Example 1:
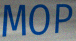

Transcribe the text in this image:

MOP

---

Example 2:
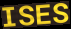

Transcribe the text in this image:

ISES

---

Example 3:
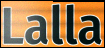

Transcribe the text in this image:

Lalla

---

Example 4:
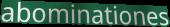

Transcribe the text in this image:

abominationes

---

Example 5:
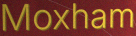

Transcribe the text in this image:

Moxham